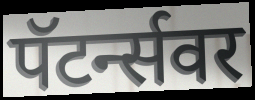
पॅटर्न्सवर